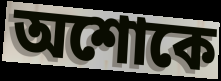
অশোকে